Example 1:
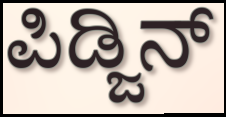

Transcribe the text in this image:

ಪಿಡ್ಜಿನ್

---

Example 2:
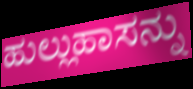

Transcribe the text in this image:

ಹುಲ್ಲುಹಾಸನ್ನು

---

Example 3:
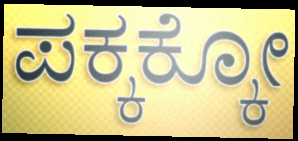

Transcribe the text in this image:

ಪಕ್ಕಕ್ಕೋ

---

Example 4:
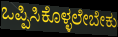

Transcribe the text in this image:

ಒಪ್ಪಿಸಿಕೊಳ್ಳಲೇಬೇಕು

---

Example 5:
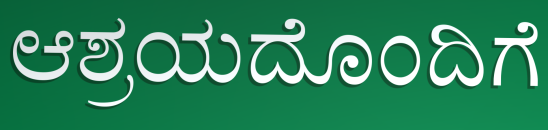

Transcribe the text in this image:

ಆಶ್ರಯದೊಂದಿಗೆ